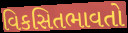
વિકસિતભાવતો